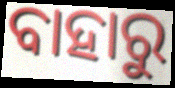
ବାହାରୁ